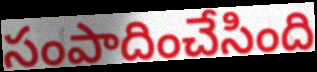
సంపాదించేసింది